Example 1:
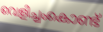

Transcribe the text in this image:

വെളിച്ചംകൊണ്ട്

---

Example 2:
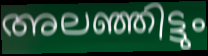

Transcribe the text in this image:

അലഞ്ഞിട്ടും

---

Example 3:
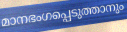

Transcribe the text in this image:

മാനഭംഗപ്പെടുത്താനും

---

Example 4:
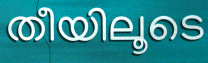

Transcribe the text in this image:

തീയിലൂടെ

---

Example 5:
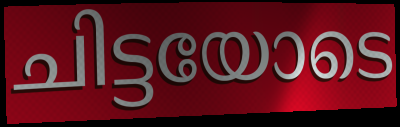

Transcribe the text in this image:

ചിട്ടയോടെ